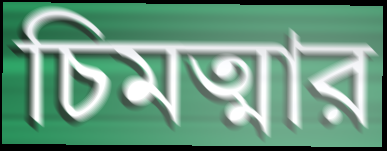
চিমত্মার